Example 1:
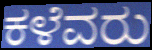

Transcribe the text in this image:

ಕಳೆವರು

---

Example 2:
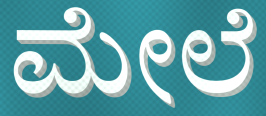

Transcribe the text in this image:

ಮೇಲೆ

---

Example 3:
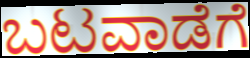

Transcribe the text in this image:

ಬಟವಾಡೆಗೆ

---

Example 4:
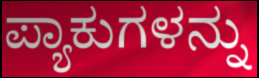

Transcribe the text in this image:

ಪ್ಯಾಕುಗಳನ್ನು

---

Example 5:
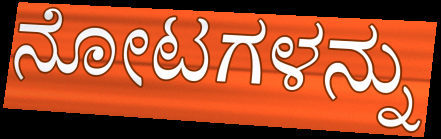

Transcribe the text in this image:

ನೋಟಗಳನ್ನು